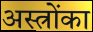
अस्त्रोंका